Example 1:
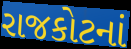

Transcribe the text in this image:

રાજકોટનાં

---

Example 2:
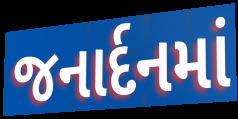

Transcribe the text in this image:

જનાર્દનમાં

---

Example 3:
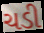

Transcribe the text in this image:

ચડી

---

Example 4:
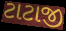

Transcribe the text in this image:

ટાટાજી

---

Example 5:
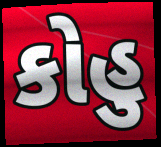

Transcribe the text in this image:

કોહુ